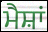
ਮੈਸ਼ਾਂ